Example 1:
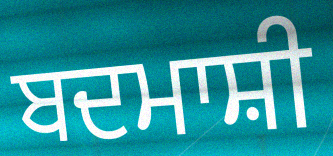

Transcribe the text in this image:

ਬਦਮਾਸ਼ੀ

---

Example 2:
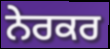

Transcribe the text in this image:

ਨੇਰਕਰ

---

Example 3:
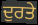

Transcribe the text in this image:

ਦੁਰਤੇ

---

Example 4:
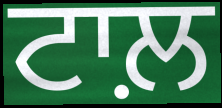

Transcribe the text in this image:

ਟਾਲ਼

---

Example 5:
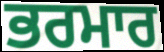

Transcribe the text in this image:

ਭਰਮਾਰ